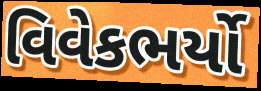
વિવેકભર્યો